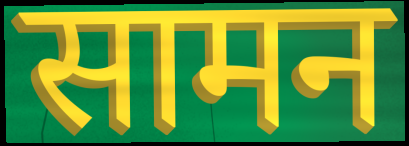
सामन